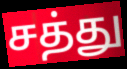
சத்து